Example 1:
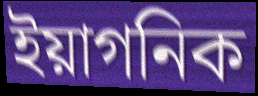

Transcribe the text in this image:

ইয়াগনিক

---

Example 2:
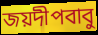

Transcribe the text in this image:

জয়দীপবাবু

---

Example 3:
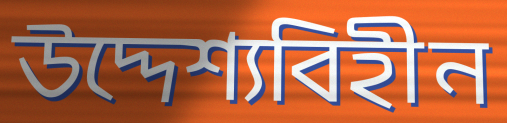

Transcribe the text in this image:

উদ্দেশ্যবিহীন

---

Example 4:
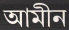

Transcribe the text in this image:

আমীন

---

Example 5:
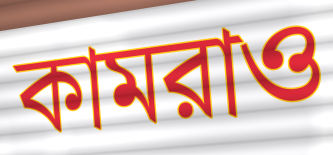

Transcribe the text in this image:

কামরাও